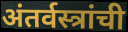
अंतर्वस्त्रांची